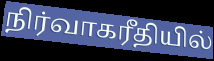
நிர்வாகரீதியில்